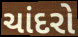
ચાંદરો